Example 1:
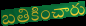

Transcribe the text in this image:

బతికించారు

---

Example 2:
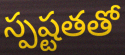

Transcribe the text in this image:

స్పష్టతతో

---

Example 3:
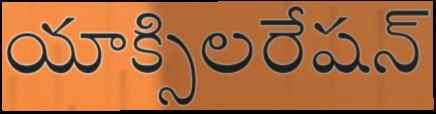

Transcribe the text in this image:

యాక్సిలరేషన్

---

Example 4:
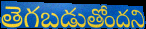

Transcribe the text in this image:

తెగబడుతోందని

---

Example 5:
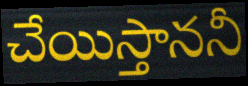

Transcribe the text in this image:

చేయిస్తాననీ